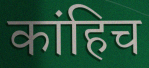
कांहिच